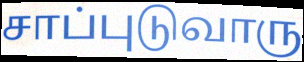
சாப்புடுவாரு